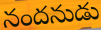
నందనుడు